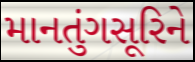
માનતુંગસૂરિને